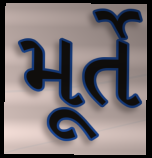
મૂર્તે